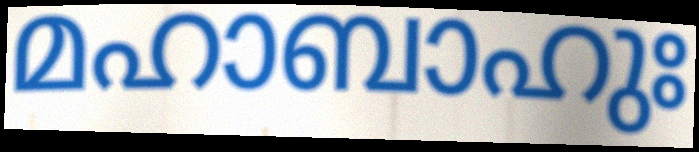
മഹാബാഹുഃ